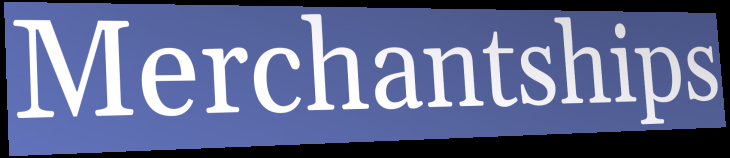
Merchantships